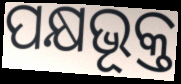
ପକ୍ଷଭୂକ୍ତ